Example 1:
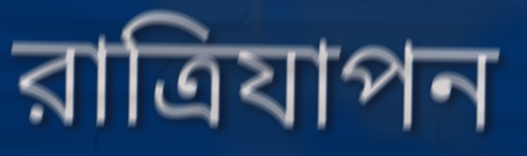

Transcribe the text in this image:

রাত্রিযাপন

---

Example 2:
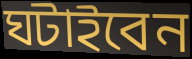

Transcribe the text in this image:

ঘটাইবেন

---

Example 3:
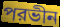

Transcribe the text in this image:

পরভীন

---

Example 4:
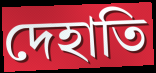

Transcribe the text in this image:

দেহাতি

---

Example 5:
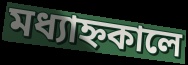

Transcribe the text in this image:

মধ্যাহ্নকালে